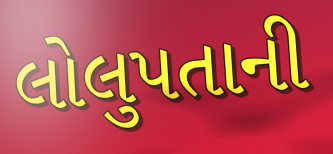
લોલુપતાની